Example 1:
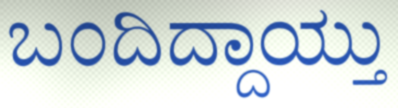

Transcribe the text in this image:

ಬಂದಿದ್ದಾಯ್ತು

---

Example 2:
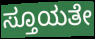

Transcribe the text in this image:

ಸ್ತೂಯತೇ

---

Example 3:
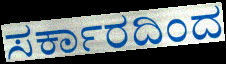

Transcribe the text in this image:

ಸರ್ಕಾರದಿಂದ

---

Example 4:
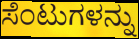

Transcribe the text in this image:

ಸೆಂಟುಗಳನ್ನು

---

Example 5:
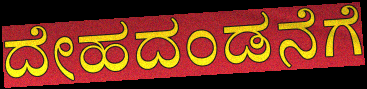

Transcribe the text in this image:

ದೇಹದಂಡನೆಗೆ